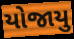
યોજાયુ